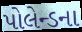
પોલેન્ડના